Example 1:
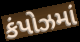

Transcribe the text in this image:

કંપોઝમાં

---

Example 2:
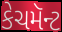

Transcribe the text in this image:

કેચમૅન્ટ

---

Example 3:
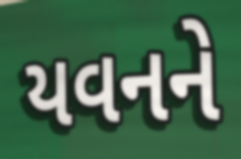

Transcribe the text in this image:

યવનને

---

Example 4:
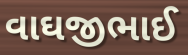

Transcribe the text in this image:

વાઘજીભાઈ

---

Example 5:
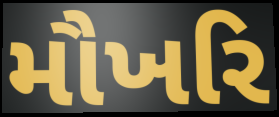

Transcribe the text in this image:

મૌખરિ